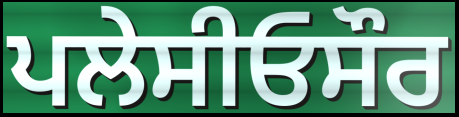
ਪਲੇਸੀਓਸੌਰ